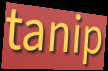
tanip